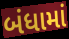
બંધામાં